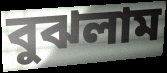
বুঝলাম